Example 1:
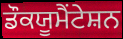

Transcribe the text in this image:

ਡੌਕਯੂਮੈਂਟੇਸ਼ਨ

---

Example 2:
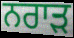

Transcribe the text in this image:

ਨਰਾੜ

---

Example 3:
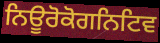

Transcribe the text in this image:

ਨਿਊਰੋਕੋਗਨਿਟਿਵ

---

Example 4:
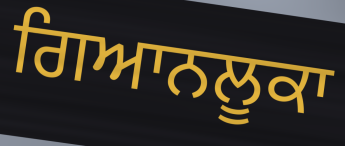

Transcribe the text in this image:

ਗਿਆਨਲੂਕਾ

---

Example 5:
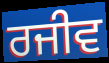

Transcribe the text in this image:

ਰਜੀਵ